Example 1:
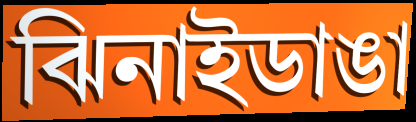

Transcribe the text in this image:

ঝিনাইডাঙা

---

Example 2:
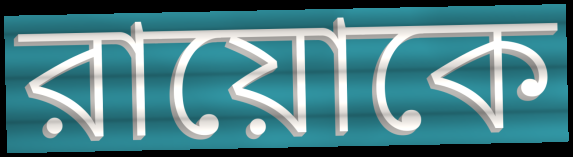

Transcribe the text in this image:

রায়োকে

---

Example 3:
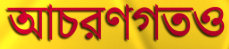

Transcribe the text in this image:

আচরণগতও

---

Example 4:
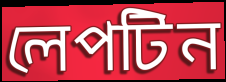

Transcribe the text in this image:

লেপটিন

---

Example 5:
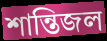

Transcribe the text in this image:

শান্তিজল